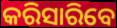
କରିସାରିବେ